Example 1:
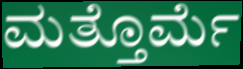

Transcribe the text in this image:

ಮತ್ತೊರ್ಮೆ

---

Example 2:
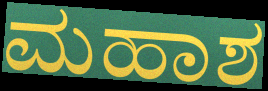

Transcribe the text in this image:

ಮಹಾಶ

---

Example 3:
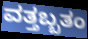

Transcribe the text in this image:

ವತ್ತಬ್ಬತಂ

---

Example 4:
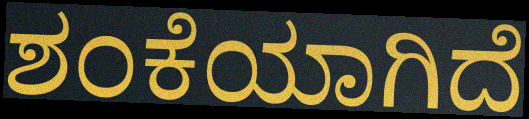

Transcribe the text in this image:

ಶಂಕೆಯಾಗಿದೆ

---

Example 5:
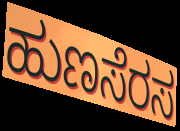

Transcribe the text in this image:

ಹುಣಸೆರಸ